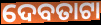
ଦେବତାଟା